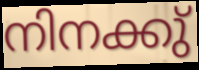
നിനക്കു്